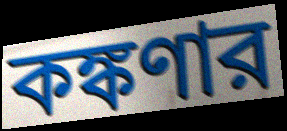
কঙ্কণার